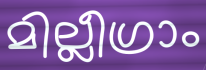
മില്ലീഗ്രാം